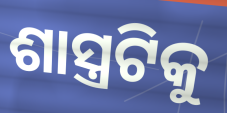
ଶାସ୍ତ୍ରଟିକୁ